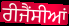
ਰੀਜੈਂਸੀਆਂ